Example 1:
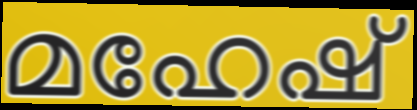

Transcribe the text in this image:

മഹേഷ്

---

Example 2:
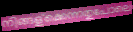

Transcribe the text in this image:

നിങ്ങള്ക്കെന്നതുപോലെ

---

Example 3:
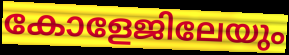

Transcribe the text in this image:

കോളേജിലേയും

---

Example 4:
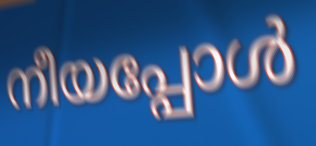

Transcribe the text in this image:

നീയപ്പോൾ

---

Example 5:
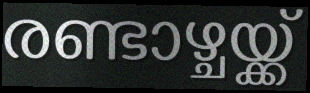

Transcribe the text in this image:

രണ്ടാഴ്ചയ്ക്ക്